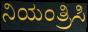
ನಿಯಂತ್ರಿಸಿ